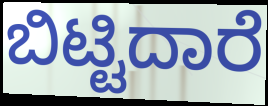
ಬಿಟ್ಟಿದಾರೆ